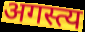
अगस्त्य